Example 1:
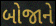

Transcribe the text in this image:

બોજાને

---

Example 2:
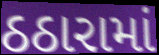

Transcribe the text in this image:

ઠઠારામાં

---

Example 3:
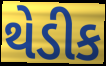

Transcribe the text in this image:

થેડીક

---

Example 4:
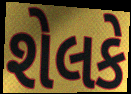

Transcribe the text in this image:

શેલકે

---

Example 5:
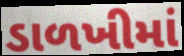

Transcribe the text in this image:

ડાળખીમાં